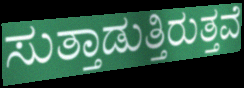
ಸುತ್ತಾಡುತ್ತಿರುತ್ತವೆ